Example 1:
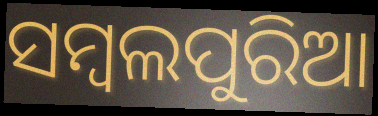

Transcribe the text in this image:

ସମ୍ୱଲପୁରିଆ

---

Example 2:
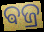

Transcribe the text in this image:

ଵଜ୍ର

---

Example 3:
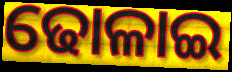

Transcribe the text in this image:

ଢୋଳାଇ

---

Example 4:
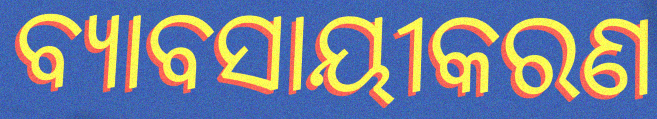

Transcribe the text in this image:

ବ୍ୟାବସାୟୀକରଣ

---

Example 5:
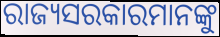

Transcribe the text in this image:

ରାଜ୍ୟସରକାରମାନଙ୍କୁ